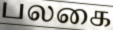
பலகை